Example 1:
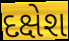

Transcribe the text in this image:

દક્ષેશ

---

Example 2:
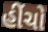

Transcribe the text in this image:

હીંચો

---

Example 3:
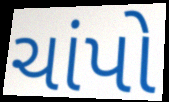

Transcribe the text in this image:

ચાંપો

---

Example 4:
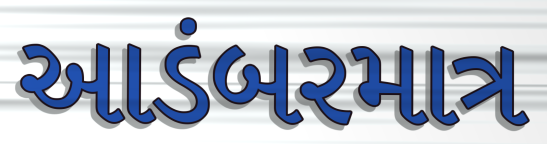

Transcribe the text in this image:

આડંબરમાત્ર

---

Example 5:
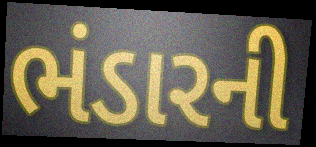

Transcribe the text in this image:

ભંડારની